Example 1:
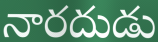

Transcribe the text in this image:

నారదుడు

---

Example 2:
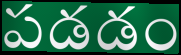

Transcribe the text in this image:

పడడం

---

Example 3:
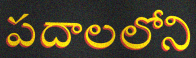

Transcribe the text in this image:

పదాలలోని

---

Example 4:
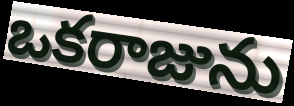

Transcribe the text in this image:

ఒకరాజును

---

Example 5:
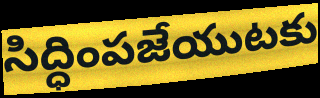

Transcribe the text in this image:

సిద్ధింపజేయుటకు